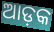
ଆଡ଼କ